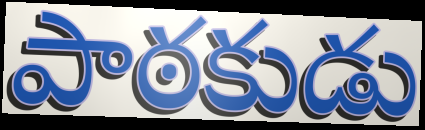
పాఠకుడు